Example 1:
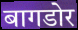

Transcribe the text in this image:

बागडोर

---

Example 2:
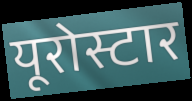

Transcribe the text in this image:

यूरोस्टार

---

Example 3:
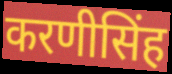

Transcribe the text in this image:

करणीसिंह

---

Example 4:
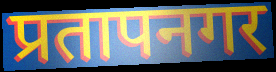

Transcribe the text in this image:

प्रतापनगर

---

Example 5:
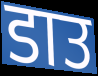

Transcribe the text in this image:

डाउ